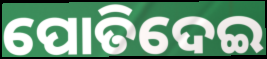
ପୋତିଦେଇ